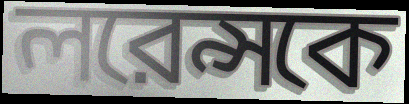
লরেন্সকে